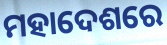
ମହାଦେଶରେ